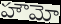
హౌమో